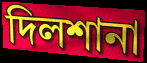
দিলশানা